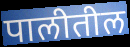
पालीतील